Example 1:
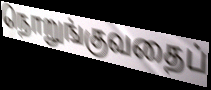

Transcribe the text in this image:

நொறுங்குவதைப்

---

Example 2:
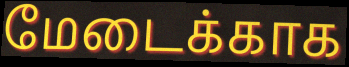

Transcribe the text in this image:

மேடைக்காக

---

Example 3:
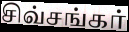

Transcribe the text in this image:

சிவ்சங்கர்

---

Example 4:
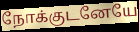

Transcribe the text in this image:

நோக்குடனேயே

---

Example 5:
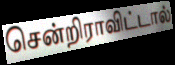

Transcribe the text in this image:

சென்றிராவிட்டால்